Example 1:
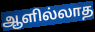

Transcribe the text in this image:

ஆளில்லாத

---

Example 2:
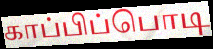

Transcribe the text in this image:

காப்பிப்பொடி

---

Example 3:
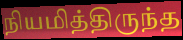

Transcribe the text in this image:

நியமித்திருந்த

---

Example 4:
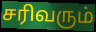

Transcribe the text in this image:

சரிவரும்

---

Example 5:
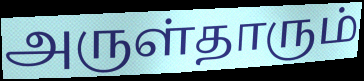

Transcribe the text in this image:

அருள்தாரும்